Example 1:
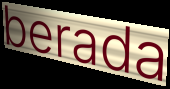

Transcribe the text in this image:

berada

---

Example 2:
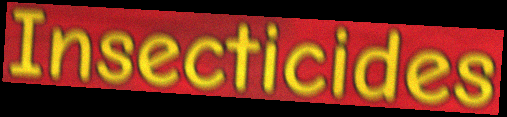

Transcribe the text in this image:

Insecticides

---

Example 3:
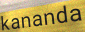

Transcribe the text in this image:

kananda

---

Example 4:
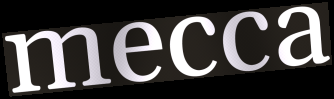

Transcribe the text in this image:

mecca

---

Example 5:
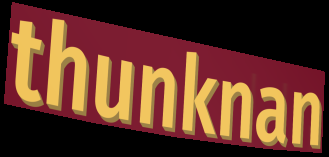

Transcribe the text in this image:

thunknan